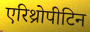
एरिथ्रोपीटिन